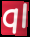
ql